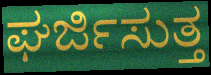
ಘರ್ಜಿಸುತ್ತ